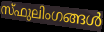
സ്ഫുലിംഗങ്ങൾ